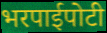
भरपाईपोटी